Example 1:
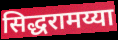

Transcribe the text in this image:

सिद्धरामय्या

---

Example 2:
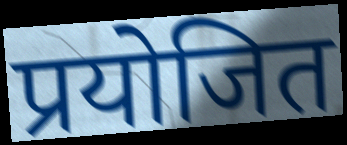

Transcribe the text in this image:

प्रयोजित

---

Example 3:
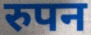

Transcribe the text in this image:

रुपन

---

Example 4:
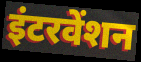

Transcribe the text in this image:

इंटरवेंशन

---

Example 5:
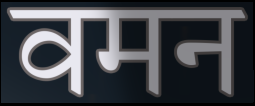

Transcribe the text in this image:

वमन